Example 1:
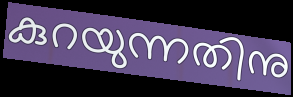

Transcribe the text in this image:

കുറയുന്നതിനു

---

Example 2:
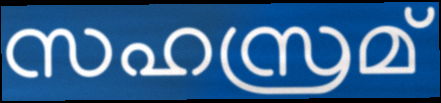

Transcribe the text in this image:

സഹസ്രമ്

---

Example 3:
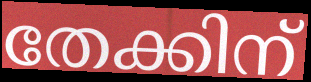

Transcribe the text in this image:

തേക്കിന്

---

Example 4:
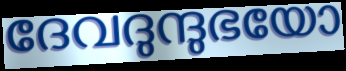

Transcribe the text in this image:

ദേവദുന്ദുഭയോ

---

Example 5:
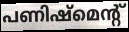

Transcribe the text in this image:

പണിഷ്മെന്റ്